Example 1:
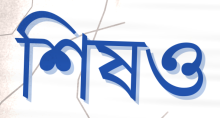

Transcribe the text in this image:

শিষও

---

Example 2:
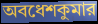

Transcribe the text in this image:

অবধেশকুমার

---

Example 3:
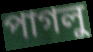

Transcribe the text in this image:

পাগলু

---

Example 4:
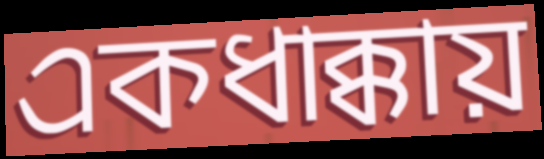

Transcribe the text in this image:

একধাক্কায়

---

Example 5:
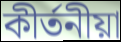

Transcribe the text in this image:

কীর্তনীয়া